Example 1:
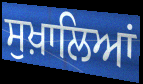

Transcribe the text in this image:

ਸੁਖ਼ਾਲਿਆਂ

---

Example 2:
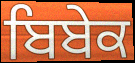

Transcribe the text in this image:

ਬਿਬੇਕ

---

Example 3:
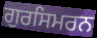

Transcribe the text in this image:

ਗੁਰਸਿਮਰਨ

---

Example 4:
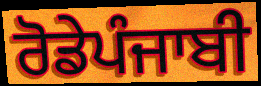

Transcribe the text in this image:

ਰੋਡੇਪੰਜਾਬੀ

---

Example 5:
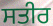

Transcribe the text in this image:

ਸਤੀਰ